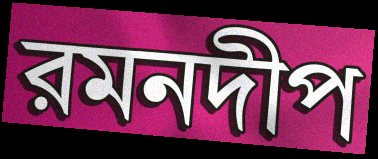
রমনদীপ